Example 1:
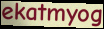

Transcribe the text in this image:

ekatmyog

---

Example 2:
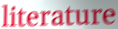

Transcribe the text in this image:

literature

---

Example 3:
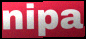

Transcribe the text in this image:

nipa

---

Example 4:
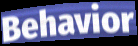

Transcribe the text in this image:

Behavior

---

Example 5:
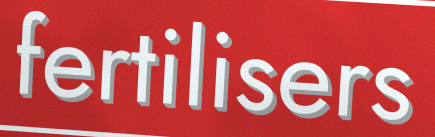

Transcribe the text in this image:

fertilisers